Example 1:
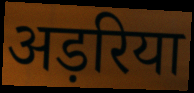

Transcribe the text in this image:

अड़रिया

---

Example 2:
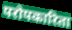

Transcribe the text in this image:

परोपकारिता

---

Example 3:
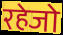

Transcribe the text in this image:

रहेजो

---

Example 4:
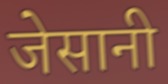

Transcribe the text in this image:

जेसानी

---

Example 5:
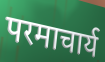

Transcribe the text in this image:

परमाचार्य